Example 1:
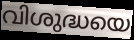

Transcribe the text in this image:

വിശുദ്ധയെ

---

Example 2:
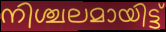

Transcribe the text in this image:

നിശ്ചലമായിട്ട്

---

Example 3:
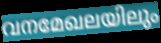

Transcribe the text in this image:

വനമേഖലയിലും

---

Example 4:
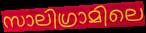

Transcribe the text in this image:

സാലിഗ്രാമിലെ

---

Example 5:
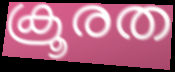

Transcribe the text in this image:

ക്രൂരത